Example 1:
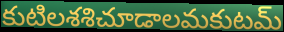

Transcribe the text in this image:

కుటిలశశిచూడాలమకుటమ్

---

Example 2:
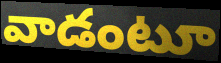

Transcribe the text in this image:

వాడంటూ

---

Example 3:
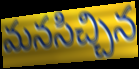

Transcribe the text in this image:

మనసిచ్చిన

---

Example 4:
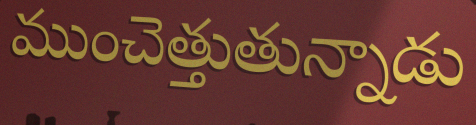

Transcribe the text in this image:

ముంచెత్తుతున్నాడు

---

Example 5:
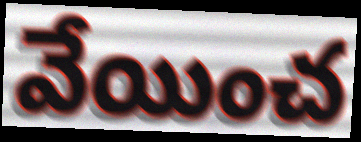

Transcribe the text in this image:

వేయించ